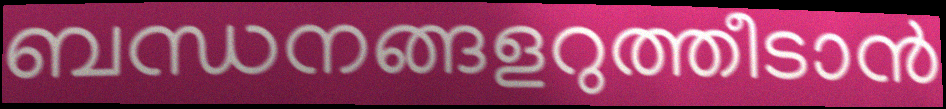
ബന്ധനങ്ങളറുത്തീടാൻ